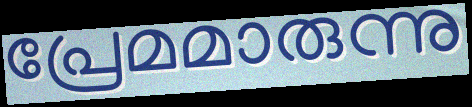
പ്രേമമാരുന്നു